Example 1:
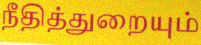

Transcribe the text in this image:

நீதித்துறையும்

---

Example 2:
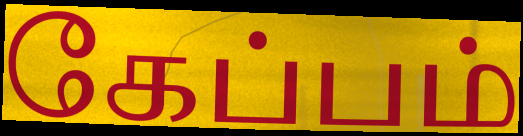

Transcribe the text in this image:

கேப்பம்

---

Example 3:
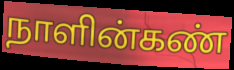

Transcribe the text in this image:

நாளின்கண்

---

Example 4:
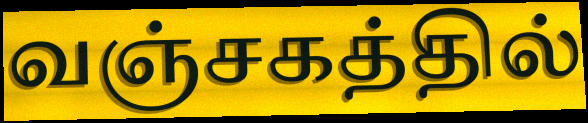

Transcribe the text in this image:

வஞ்சகத்தில்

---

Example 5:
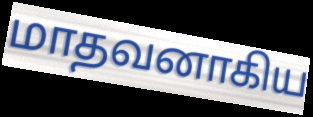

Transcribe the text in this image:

மாதவனாகிய